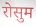
रोसुम